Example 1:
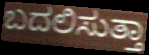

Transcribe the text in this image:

ಬದಲಿಸುತ್ತಾ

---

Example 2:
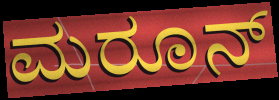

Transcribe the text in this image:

ಮರೂನ್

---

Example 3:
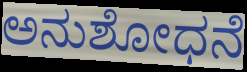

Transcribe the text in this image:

ಅನುಶೋಧನೆ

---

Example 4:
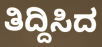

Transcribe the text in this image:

ತಿದ್ದಿಸಿದ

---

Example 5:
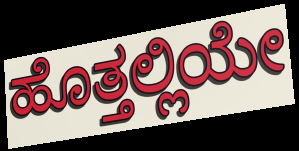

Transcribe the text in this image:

ಹೊತ್ತಲ್ಲಿಯೇ